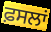
ਫ਼ਸਲਾਂ